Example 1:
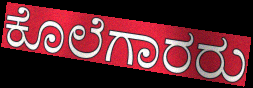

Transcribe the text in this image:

ಕೊಲೆಗಾರರು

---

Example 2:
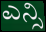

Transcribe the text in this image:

ಎನ್ಸಿ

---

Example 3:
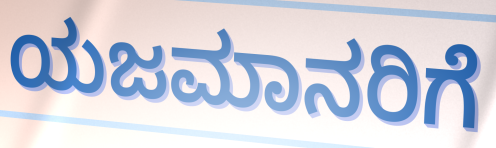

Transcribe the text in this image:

ಯಜಮಾನರಿಗೆ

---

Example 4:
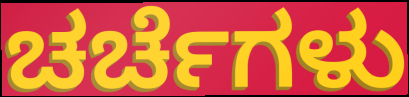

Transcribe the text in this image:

ಚರ್ಚೆಗಳು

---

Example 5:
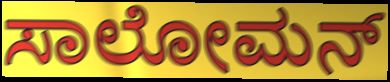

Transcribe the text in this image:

ಸಾಲೋಮನ್